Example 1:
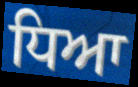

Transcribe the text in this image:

ਧਿਆ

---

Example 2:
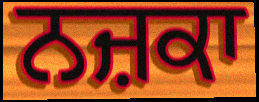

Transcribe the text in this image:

ਨਜ਼ਕਾ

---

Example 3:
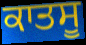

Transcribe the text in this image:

ਕਾਤਸੂ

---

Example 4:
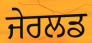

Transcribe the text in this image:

ਜੇਰਲਡ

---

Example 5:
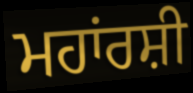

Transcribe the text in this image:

ਮਹਾਂਰਸ਼ੀ